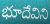
భూదేవిని